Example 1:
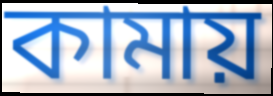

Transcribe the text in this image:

কামায়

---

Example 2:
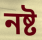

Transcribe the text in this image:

নষ্ট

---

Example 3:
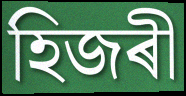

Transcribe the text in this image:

হিজৰী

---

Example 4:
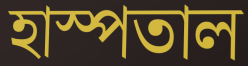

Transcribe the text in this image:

হাস্পতাল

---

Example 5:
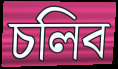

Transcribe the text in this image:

চলিব